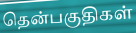
தென்பகுதிகள்